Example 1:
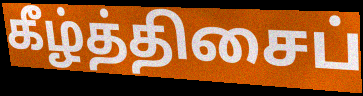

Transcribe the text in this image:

கீழ்த்திசைப்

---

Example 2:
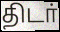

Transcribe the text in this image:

திடர்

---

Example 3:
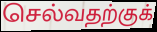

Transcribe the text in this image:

செல்வதற்குக்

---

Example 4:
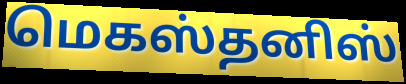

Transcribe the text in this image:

மெகஸ்தனிஸ்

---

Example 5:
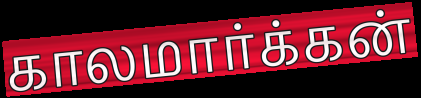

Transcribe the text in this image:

காலமார்க்கன்